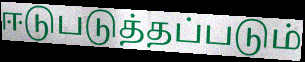
ஈடுபடுத்தப்படும்